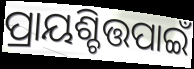
ପ୍ରାୟଶ୍ଚିତ୍ତପାଇଁ